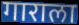
गाराला